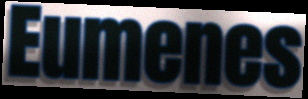
Eumenes